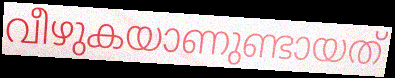
വീഴുകയാണുണ്ടായത്